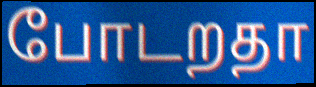
போடறதா